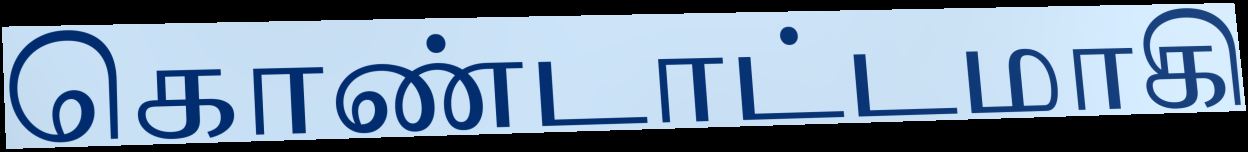
கொண்டாட்டமாகி